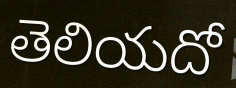
తెలియదో